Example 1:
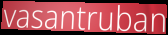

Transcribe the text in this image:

vasantruban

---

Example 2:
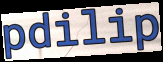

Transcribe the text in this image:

pdilip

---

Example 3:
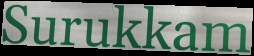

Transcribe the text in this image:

Surukkam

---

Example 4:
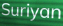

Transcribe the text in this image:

Suriyan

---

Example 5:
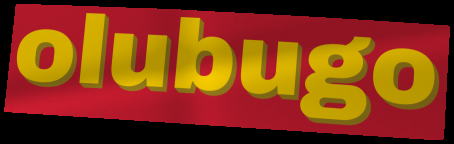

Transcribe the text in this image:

olubugo